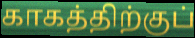
காகத்திற்குப்